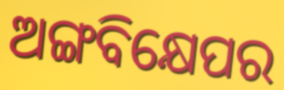
ଅଙ୍ଗବିକ୍ଷେପର